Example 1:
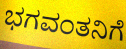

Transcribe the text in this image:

ಭಗವಂತನಿಗೆ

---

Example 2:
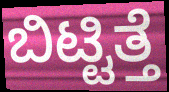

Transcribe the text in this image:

ಬಿಟ್ಟಿತ್ತೆ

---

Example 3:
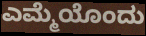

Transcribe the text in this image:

ಎಮ್ಮೆಯೊಂದು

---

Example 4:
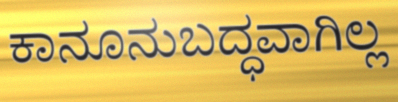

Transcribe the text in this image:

ಕಾನೂನುಬದ್ಧವಾಗಿಲ್ಲ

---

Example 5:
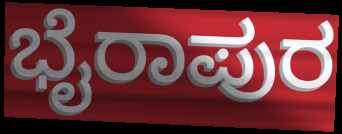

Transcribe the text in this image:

ಭೈರಾಪುರ